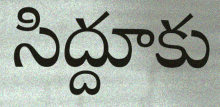
సిద్దూకు